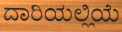
ದಾರಿಯಲ್ಲಿಯೆ